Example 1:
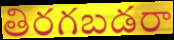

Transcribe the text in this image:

తిరగబడరా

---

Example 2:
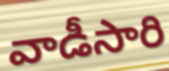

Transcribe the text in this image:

వాడీసారి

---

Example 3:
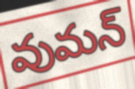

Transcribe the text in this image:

వుమన్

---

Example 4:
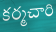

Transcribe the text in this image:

కర్మచారి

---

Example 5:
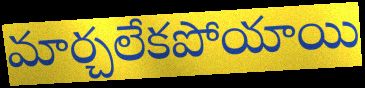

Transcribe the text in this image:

మార్చలేకపోయాయి